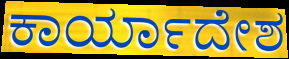
ಕಾರ್ಯಾದೇಶ